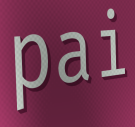
pai